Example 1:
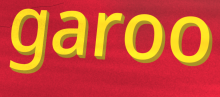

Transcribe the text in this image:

garoo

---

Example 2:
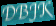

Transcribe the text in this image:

DBJK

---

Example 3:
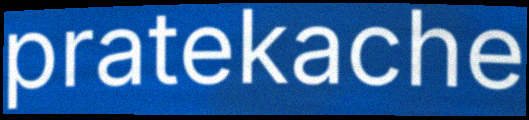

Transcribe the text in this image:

pratekache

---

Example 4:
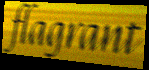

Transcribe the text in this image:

flagrant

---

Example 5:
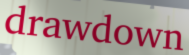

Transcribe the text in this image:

drawdown